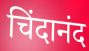
चिंदानंद